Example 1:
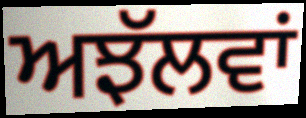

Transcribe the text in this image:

ਅਝੱਲਵਾਂ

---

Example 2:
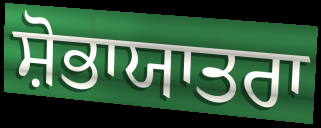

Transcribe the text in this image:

ਸ਼ੋਭਾਯਾਤਰਾ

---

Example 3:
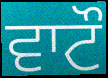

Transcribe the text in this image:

ਵਾਟੌ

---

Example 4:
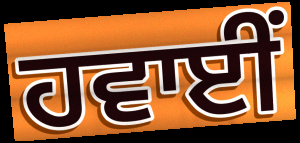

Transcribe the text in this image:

ਹਵਾਈਂ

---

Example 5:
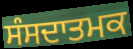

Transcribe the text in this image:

ਸੰਸਦਾਤਮਕ